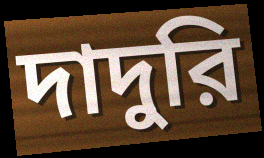
দাদুরি